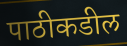
पाठीकडील